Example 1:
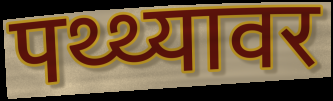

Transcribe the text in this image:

पथ्थ्यावर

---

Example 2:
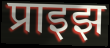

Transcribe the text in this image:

प्राइझ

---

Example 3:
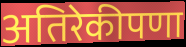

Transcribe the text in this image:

अतिरेकीपणा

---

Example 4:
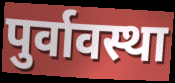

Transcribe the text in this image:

पुर्वावस्था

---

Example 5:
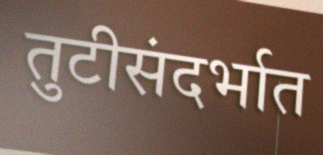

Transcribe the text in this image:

तुटीसंदर्भात